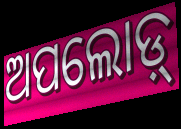
ଅପଲୋଡ଼୍